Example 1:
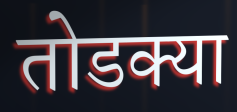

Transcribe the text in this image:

तोडक्या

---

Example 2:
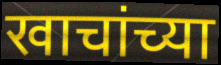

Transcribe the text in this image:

खाचांच्या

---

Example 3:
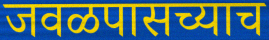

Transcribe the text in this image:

जवळपासच्याच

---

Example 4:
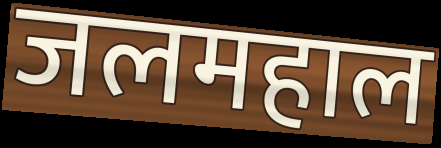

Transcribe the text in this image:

जलमहाल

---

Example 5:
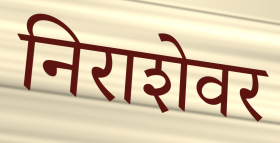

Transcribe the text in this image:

निराशेवर